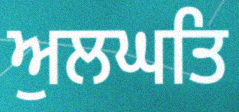
ਅੁਲਘਤਿ